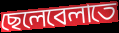
ছেলেবেলাতে